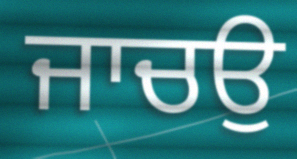
ਜਾਚਉ